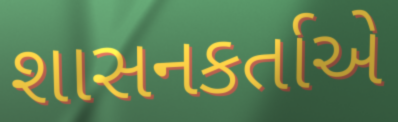
શાસનકર્તાએ